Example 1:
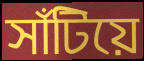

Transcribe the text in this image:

সাঁটিয়ে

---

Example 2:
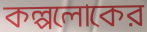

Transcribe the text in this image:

কল্পলোকের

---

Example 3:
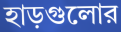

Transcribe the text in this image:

হাড়গুলোর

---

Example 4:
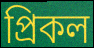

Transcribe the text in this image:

প্রিকল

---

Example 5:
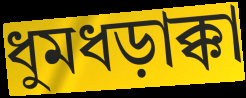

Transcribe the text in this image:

ধুমধড়াক্কা